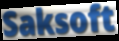
Saksoft